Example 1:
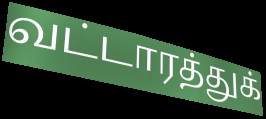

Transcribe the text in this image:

வட்டாரத்துக்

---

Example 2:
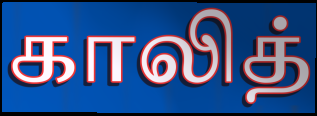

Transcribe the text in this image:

காலித்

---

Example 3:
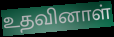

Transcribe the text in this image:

உதவினாள்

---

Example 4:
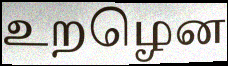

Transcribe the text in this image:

உறழென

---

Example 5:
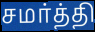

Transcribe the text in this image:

சமர்த்தி